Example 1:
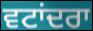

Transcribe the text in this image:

ਵਟਾਂਦਰਾ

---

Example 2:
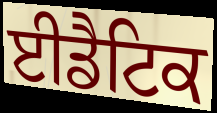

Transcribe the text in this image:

ਈਡੈਟਿਕ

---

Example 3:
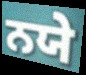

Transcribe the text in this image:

ਨਯੇ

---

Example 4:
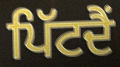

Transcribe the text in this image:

ਪਿੱਟਦੈਂ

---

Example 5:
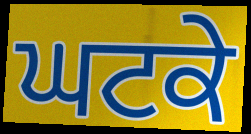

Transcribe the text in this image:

ਘਟਕੇ